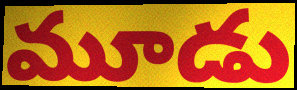
మూడు